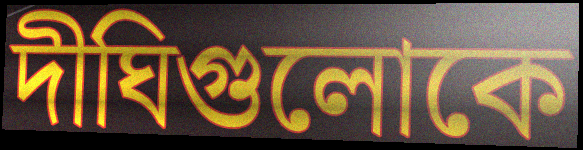
দীঘিগুলোকে